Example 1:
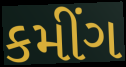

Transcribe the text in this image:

કમીંગ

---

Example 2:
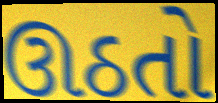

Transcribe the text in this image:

ઊઠતો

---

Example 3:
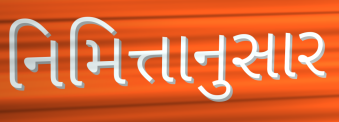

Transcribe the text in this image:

નિમિત્તાનુસાર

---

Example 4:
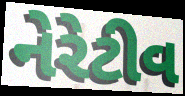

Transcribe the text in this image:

નેરેટીવ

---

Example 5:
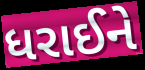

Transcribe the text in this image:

ધરાઈને